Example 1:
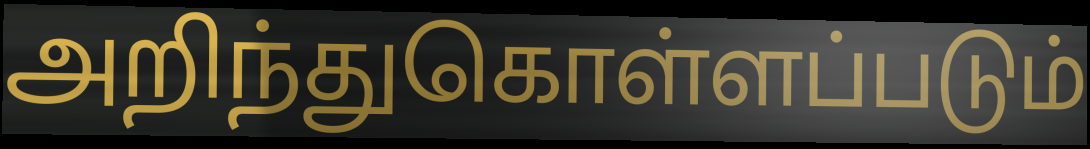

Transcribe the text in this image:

அறிந்துகொள்ளப்படும்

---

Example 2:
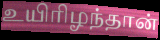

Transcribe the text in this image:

உயிரிழந்தான்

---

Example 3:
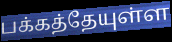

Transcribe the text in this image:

பக்கத்தேயுள்ள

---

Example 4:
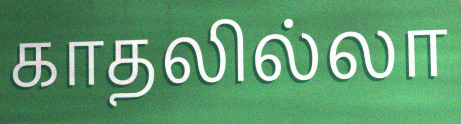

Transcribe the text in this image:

காதலில்லா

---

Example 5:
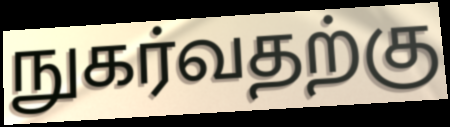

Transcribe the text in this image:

நுகர்வதற்கு